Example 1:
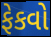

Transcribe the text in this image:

ફેકવો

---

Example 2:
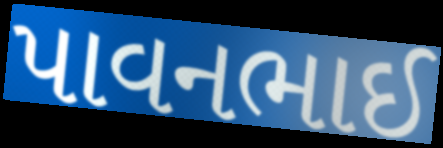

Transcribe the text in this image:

પાવનભાઈ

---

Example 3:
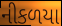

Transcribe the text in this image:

નીકળયા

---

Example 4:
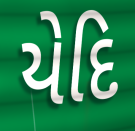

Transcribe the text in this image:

યેદિ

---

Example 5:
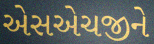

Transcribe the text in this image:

એસએચજીને